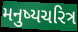
મનુષ્યચરિત્ર